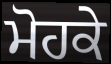
ਮੋਹਕੇ